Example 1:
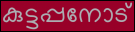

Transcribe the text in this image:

കുട്ടപ്പനോട്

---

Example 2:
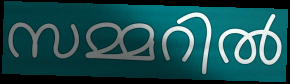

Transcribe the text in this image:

സമ്മറിൽ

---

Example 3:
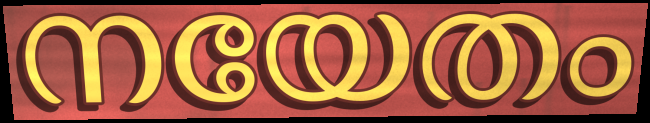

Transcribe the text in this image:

നയേതം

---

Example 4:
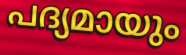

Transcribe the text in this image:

പദ്യമായും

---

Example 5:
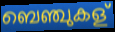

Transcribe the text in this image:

ബെഞ്ചുകള്